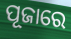
ପୂଜାରେ